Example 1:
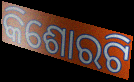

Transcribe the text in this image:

କିଶୋରଟି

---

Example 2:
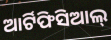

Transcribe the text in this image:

ଆର୍ଟିଫିସିଆଲ୍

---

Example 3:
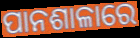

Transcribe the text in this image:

ପାନଶାଳାରେ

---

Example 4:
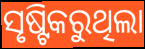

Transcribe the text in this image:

ସୃଷ୍ଟିକରୁଥିଲା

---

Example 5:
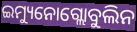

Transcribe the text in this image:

ଇମ୍ୟୁନୋଗ୍ଲୋବୁଲିନ